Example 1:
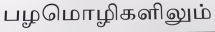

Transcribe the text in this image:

பழமொழிகளிலும்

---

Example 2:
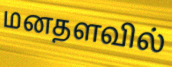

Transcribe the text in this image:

மனதளவில்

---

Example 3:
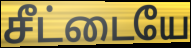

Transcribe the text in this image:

சீட்டையே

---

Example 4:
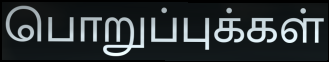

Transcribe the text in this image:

பொறுப்புக்கள்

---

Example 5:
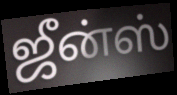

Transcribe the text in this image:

ஜீன்ஸ்